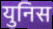
युनिस